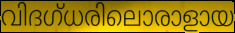
വിദഗ്ധരിലൊരാളായ